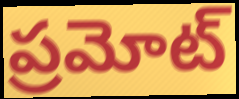
ప్రమోట్